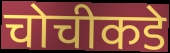
चोचीकडे